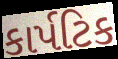
કાર્પટિક